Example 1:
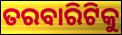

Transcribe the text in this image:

ତରବାରିଟିକୁ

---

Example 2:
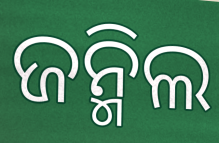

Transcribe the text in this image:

ଜନ୍ମିଲ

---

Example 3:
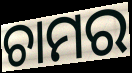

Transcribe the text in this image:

ଚାମର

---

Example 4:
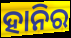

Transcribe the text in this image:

ହାନିର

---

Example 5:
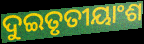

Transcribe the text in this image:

ଦୁଇତୃତୀୟାଂଶ